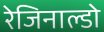
रेजिनाल्डो